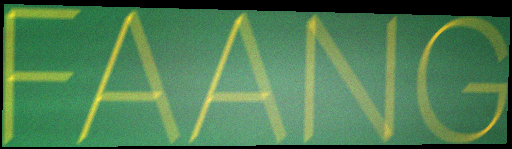
FAANG